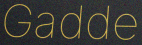
Gadde